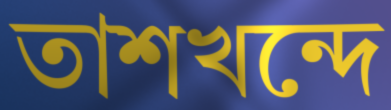
তাশখন্দে